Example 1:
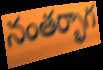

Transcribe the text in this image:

నంతర్భాగ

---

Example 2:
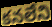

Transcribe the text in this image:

కనలేని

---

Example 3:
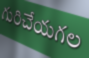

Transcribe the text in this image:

గురిచేయగల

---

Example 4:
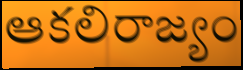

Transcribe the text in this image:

ఆకలిరాజ్యం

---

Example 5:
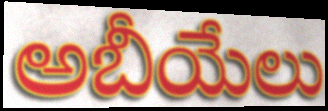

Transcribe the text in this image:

అబీయేలు